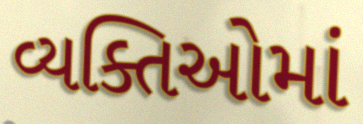
વ્યક્તિઓમાં